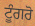
ਟੂੰਗਰੋ